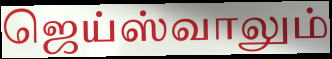
ஜெய்ஸ்வாலும்